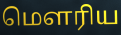
மெளரிய